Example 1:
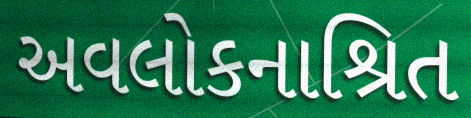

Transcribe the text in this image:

અવલોકનાશ્રિત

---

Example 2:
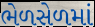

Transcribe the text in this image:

ભેળસેળમાં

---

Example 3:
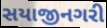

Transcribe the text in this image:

સયાજીનગરી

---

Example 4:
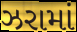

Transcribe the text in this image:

ઝરામાં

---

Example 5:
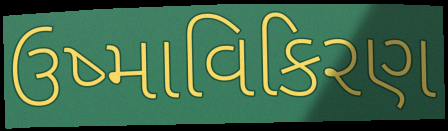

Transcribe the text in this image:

ઉષ્માવિકિરણ